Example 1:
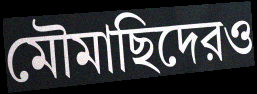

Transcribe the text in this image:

মৌমাছিদেরও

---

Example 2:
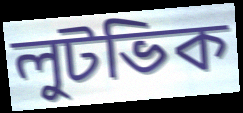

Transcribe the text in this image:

লুটভিক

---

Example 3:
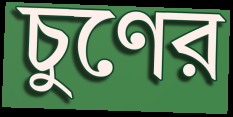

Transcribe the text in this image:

চুণের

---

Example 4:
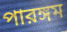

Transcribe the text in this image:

পারঙ্গম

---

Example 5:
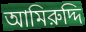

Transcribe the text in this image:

আমিরুদ্দি